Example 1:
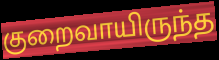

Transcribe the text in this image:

குறைவாயிருந்த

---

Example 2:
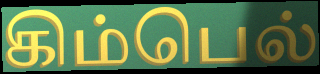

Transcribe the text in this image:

கிம்பெல்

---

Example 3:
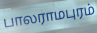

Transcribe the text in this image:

பாலராமபுரம்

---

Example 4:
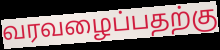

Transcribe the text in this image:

வரவழைப்பதற்கு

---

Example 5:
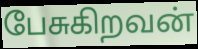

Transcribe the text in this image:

பேசுகிறவன்